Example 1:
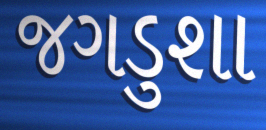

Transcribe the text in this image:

જગડુશા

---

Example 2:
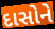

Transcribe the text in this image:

દાસોને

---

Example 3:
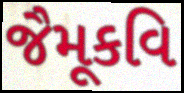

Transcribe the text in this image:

જૈમૂકવિ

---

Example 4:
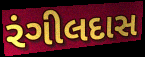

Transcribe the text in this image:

રંગીલદાસ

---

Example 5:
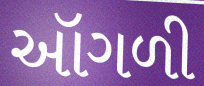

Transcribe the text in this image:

ઑગળી